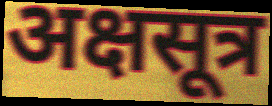
अक्षसूत्र